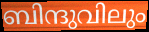
ബിന്ദുവിലും